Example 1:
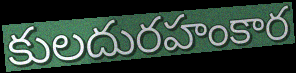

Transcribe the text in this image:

కులదురహంకార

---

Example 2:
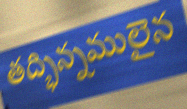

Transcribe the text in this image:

తద్భిన్నములైన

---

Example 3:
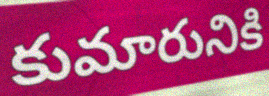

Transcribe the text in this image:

కుమారునికి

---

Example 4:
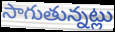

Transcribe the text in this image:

సాగుతున్నట్లు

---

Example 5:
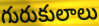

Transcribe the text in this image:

గురుకులాలు